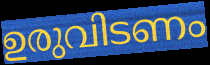
ഉരുവിടണം